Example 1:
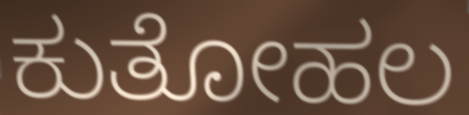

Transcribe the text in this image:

ಕುತೋಹಲ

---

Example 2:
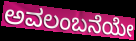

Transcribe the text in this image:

ಅವಲಂಬನೆಯೇ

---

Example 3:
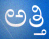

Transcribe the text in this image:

ಅತ್ತಿ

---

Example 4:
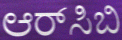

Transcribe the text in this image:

ಆರ್‌ಸಿಬಿ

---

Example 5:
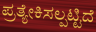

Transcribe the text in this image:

ಪ್ರತ್ಯೇಕಿಸಲ್ಪಟ್ಟಿದೆ